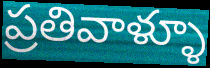
ప్రతివాళ్ళూ